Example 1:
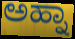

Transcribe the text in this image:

ಅಹ್ನಾ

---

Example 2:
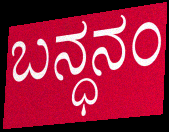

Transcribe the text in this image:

ಬನ್ಧನಂ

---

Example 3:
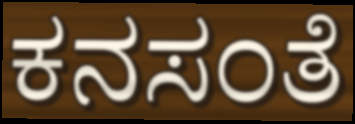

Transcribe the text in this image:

ಕನಸಂತೆ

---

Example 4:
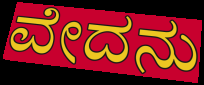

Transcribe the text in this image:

ವೇದನು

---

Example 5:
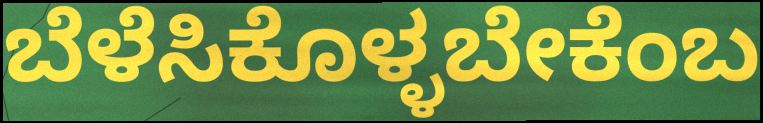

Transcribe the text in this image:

ಬೆಳೆಸಿಕೊಳ್ಳಬೇಕೆಂಬ